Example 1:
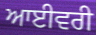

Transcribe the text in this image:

ਆਈਵਰੀ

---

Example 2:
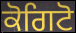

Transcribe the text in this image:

ਕੋਗਿਟੋ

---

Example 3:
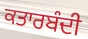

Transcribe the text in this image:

ਕਤਾਰਬੰਦੀ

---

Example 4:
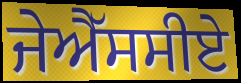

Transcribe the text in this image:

ਜੇਐੱਸਸੀਏ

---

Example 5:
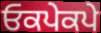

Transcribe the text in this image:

ਓਕਪੇਕਪੇ